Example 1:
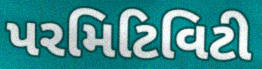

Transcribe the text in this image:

પરમિટિવિટી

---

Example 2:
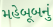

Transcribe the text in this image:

મહેબૂબનું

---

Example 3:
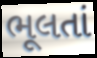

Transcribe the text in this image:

ભૂલતાં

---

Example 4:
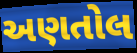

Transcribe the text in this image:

અણતોલ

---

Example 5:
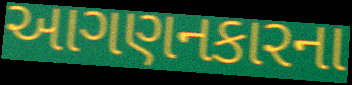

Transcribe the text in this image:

આગણનકારના